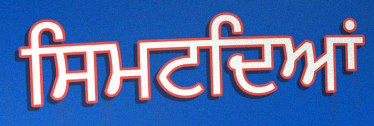
ਸਿਮਟਦਿਆਂ